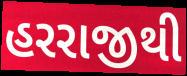
હરરાજીથી